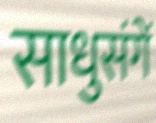
साधुसंगें